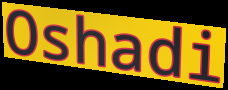
Oshadi